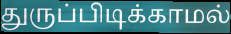
துருப்பிடிக்காமல்